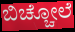
ಬಿಚ್ಚೋಲೆ